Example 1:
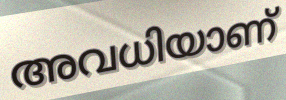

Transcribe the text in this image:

അവധിയാണ്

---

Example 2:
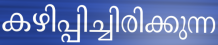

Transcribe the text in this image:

കഴിപ്പിച്ചിരിക്കുന്ന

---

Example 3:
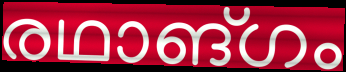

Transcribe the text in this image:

രഥാങ്ഗം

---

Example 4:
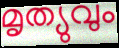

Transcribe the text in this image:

മൃത്യുവും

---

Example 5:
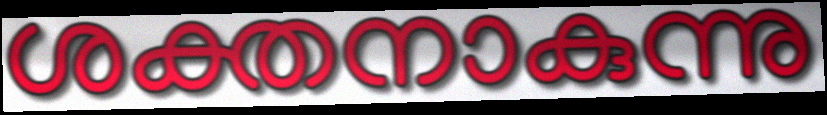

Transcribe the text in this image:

ശക്തനാകുന്നു